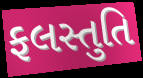
ફલસ્તુતિ